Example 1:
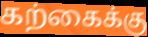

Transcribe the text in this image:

கற்கைக்கு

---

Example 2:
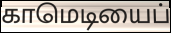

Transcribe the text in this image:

காமெடியைப்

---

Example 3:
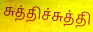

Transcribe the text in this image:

சுத்திச்சுத்தி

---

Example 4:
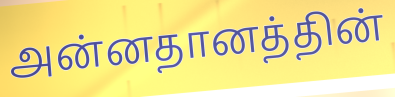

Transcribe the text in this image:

அன்னதானத்தின்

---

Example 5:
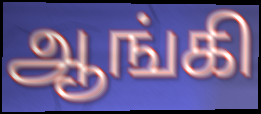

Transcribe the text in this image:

ஆங்கி